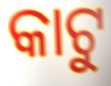
କାଟୁ